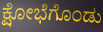
ಕ್ಷೋಭೆಗೊಂಡು